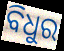
ବିଧୁର